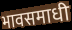
भावसमाधी